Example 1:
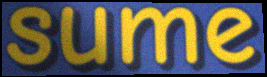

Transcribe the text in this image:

sume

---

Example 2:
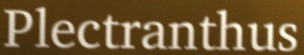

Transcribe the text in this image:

Plectranthus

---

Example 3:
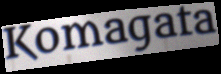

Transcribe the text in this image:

Komagata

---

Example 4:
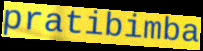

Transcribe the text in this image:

pratibimba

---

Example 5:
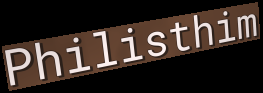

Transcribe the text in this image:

Philisthim